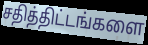
சதித்திட்டங்களை